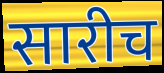
सारीच